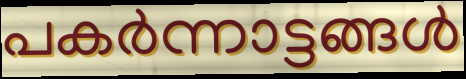
പകർന്നാട്ടങ്ങൾ